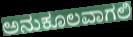
ಅನುಕೂಲವಾಗಲಿ